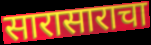
सारासाराचा